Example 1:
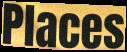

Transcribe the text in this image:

Places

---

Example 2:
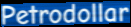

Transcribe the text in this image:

Petrodollar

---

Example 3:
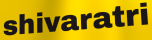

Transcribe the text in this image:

shivaratri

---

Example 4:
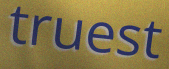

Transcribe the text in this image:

truest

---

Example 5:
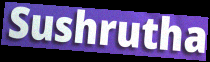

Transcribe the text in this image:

Sushrutha